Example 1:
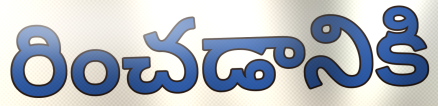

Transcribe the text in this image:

రించడానికి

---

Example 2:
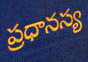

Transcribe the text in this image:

ప్రధానస్య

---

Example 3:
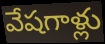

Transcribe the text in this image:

వేషగాళ్లు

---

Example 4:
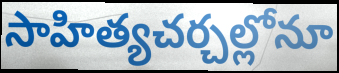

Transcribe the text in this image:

సాహిత్యచర్చల్లోనూ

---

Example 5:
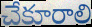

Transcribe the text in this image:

చేకూరాలి